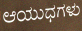
ಆಯುಧಗಳು